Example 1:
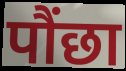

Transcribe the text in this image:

पौंछा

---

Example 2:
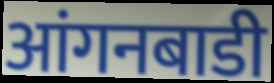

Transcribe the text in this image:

आंगनबाडी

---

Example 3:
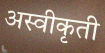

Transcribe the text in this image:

अस्वीकृती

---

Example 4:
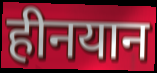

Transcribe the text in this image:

हीनयान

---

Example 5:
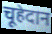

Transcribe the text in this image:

चूहेदान